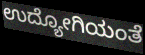
ಉದ್ಯೋಗಿಯಂತೆ